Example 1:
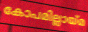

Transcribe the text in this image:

കോപമില്ലായ്മ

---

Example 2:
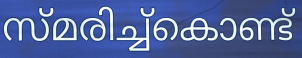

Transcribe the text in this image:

സ്മരിച്ച്കൊണ്ട്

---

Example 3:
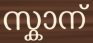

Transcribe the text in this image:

സ്കാന്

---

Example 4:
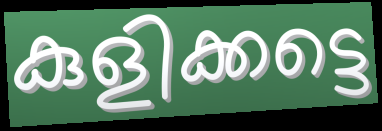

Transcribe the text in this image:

കുളിക്കട്ടെ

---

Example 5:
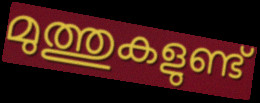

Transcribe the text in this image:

മുത്തുകളുണ്ട്